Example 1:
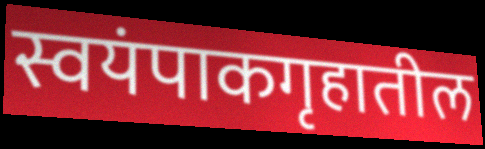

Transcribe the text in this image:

स्वयंपाकगृहातील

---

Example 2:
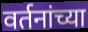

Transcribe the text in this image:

वर्तनांच्या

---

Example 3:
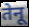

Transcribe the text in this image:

तेनू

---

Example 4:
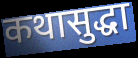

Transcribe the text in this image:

कथासुद्धा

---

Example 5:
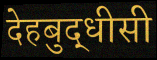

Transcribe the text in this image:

देहबुद्धीसी